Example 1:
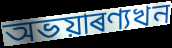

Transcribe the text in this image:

অভয়াৰণ্যখন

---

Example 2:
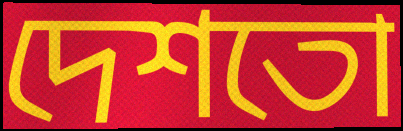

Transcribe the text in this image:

দেশতো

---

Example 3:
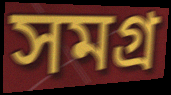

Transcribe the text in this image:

সমগ্ৰ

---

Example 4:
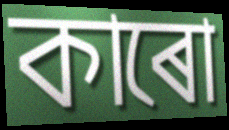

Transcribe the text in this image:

কাৰো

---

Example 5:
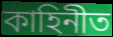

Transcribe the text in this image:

কাহিনীত